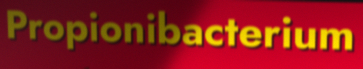
Propionibacterium